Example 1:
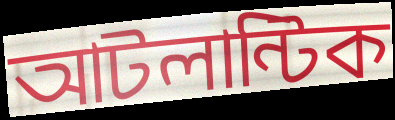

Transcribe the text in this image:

আটলান্টিক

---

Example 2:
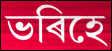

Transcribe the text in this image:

ভৰিহে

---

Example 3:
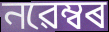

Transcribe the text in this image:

নৱেম্বৰ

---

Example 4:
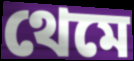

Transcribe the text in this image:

থেমে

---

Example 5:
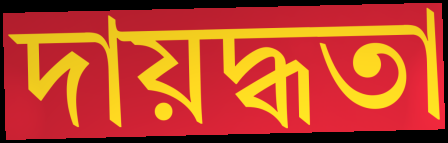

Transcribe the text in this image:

দায়দ্ধতা